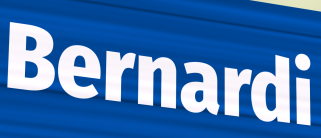
Bernardi